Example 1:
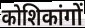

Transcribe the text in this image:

कोशिकांगों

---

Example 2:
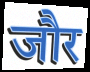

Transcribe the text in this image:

जौर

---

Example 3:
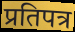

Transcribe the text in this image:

प्रतिपत्र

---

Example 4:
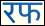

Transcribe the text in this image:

रफ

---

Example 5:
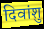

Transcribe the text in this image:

दिवांशु